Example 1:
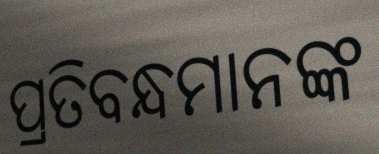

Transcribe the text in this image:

ପ୍ରତିବନ୍ଧମାନଙ୍କ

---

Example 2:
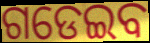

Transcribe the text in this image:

ଗଡେଇବ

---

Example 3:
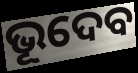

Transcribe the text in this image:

ଭୂଦେବ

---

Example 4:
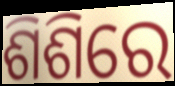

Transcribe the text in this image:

ଶିଶିରେ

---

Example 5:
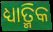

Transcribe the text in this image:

ଧ୍ୟାତ୍ମିକ